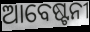
ଆବେଷ୍ଟନୀ